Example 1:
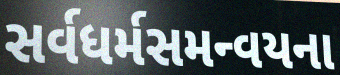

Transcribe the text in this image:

સર્વધર્મસમન્વયના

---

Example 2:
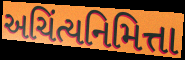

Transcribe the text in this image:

અચિંત્યનિમિત્તા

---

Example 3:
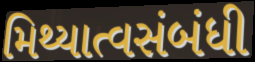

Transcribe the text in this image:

મિથ્યાત્વસંબંધી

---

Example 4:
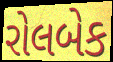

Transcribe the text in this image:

રોલબેક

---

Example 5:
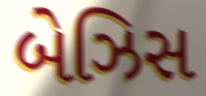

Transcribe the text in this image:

બેઝિસ